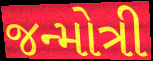
જન્મોત્રી